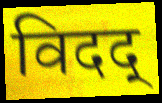
विदद्